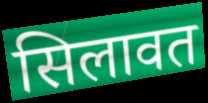
सिलावत